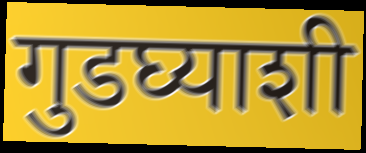
गुडघ्याशी